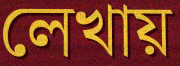
লেখায়